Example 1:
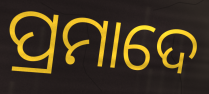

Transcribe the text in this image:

ପ୍ରମାଦେ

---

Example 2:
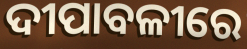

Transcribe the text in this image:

ଦୀପାବଳୀରେ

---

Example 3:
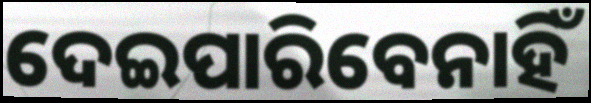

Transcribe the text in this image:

ଦେଇପାରିବେନାହିଁ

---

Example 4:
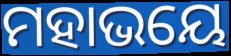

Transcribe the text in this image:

ମହାଭୟେ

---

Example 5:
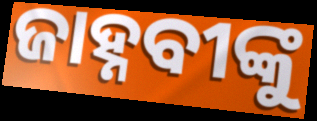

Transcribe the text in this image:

ଜାହ୍ନବୀଙ୍କୁ